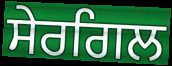
ਸੇਰਗਿਲ